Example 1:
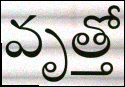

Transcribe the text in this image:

వృత్తో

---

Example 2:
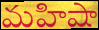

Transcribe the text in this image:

మహిషా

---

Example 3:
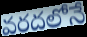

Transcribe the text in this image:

వరదలోనే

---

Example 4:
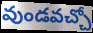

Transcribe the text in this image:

వుండవచ్చో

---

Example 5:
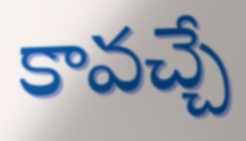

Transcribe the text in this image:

కావచ్చే